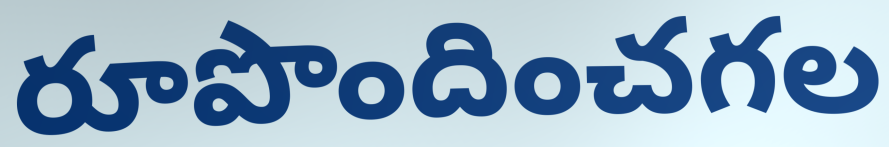
రూపొందించగల